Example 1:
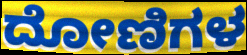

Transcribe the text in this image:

ದೋಣಿಗಳ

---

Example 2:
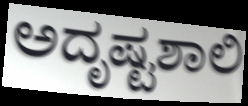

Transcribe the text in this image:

ಅದೃಷ್ಟಶಾಲಿ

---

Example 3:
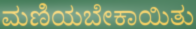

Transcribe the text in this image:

ಮಣಿಯಬೇಕಾಯಿತು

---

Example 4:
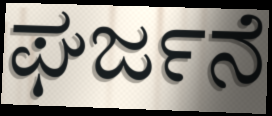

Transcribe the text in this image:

ಘರ್ಜನೆ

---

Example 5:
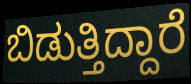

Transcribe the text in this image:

ಬಿಡುತ್ತಿದ್ದಾರೆ